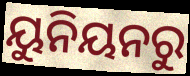
ୟୁନିୟନରୁ